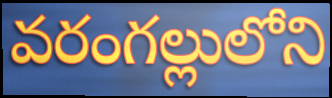
వరంగల్లులోని